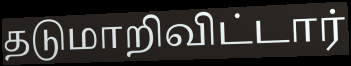
தடுமாறிவிட்டார்